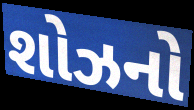
શોઝનો